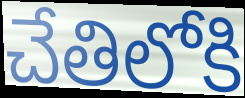
చేతిలోకి